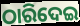
ଠାରିଦେଇ